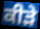
ਕੀੜੇ